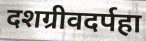
दशग्रीवदर्पहा